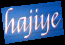
hajiye